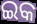
ଇକ